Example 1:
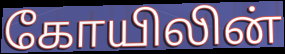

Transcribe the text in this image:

கோயிலின்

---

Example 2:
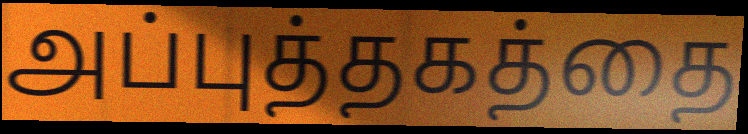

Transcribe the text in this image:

அப்புத்தகத்தை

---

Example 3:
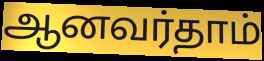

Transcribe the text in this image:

ஆனவர்தாம்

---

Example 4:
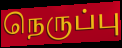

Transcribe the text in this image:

நெருப்பு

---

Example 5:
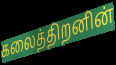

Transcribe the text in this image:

கலைத்திறனின்